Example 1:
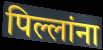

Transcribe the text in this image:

पिल्लांना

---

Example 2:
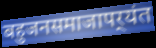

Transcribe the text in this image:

बहुजनसमाजापर्यंत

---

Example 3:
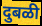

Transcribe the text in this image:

दुबळी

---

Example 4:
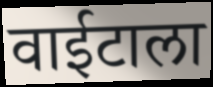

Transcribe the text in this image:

वाईटाला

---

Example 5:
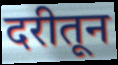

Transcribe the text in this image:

दरीतून